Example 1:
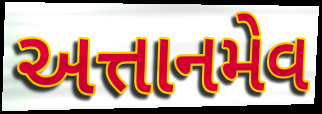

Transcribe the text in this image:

અત્તાનમેવ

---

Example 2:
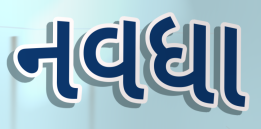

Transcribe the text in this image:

નવધા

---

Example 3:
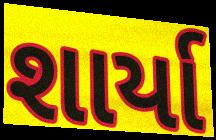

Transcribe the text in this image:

શાર્યા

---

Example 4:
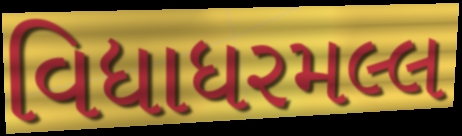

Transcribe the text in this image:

વિદ્યાધરમલ્લ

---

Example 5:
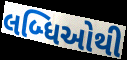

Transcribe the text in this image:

લબ્ધિઓથી